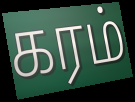
கரம்